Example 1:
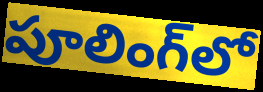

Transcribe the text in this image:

పూలింగ్‌లో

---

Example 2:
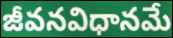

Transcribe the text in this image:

జీవనవిధానమే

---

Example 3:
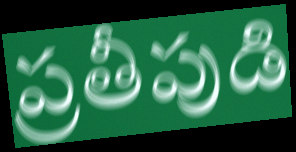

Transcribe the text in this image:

ప్రతీపుడి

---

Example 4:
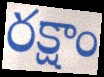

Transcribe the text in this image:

రక్షాం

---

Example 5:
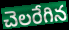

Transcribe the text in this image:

చెలరేగిన